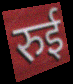
रुई